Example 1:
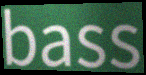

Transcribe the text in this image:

bass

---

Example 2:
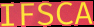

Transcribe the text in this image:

IFSCA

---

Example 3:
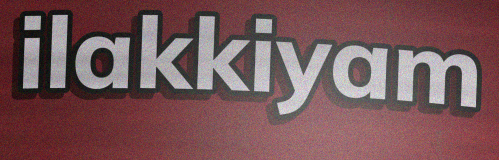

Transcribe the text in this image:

ilakkiyam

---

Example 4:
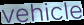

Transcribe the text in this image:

vehicle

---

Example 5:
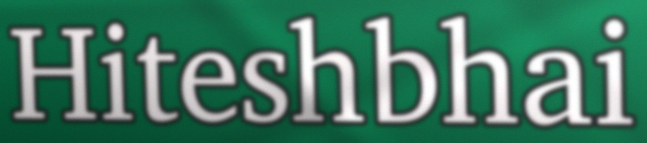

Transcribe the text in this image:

Hiteshbhai